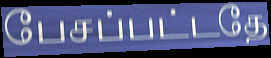
பேசப்பட்டதே